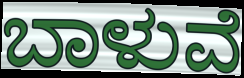
ಬಾಳುವೆ